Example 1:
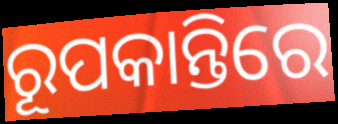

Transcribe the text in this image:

ରୂପକାନ୍ତିରେ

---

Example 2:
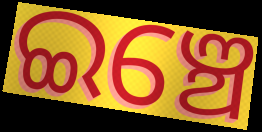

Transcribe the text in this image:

ଇଞ୍ଚେ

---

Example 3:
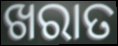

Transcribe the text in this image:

ଖରାତ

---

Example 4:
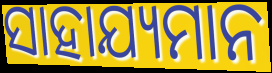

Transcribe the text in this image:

ସାହାଯ୍ୟମାନ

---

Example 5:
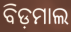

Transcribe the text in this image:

ବିଡ଼ମାଲ